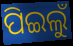
ପିଇଲୁଁ